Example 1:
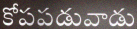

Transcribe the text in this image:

కోపపడువాడు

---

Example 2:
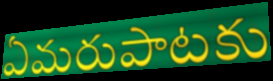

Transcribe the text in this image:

ఏమరుపాటకు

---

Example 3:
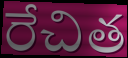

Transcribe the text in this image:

రేచిత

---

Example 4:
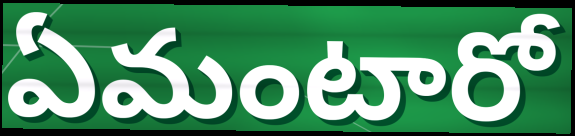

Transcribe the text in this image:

ఏమంటారో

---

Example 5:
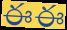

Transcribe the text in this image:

ఈఈ